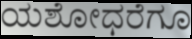
ಯಶೋಧರೆಗೂ